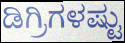
ಡಿಗ್ರಿಗಳಷ್ಟು